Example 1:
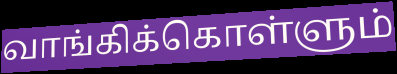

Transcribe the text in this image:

வாங்கிக்கொள்ளும்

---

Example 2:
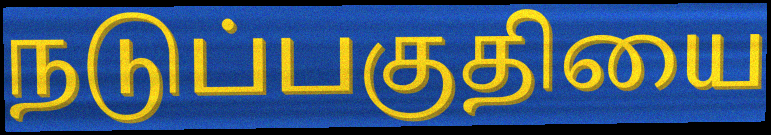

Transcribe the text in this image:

நடுப்பகுதியை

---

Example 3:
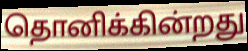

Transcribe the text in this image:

தொனிக்கின்றது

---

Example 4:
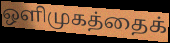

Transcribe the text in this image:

ஒளிமுகத்தைக்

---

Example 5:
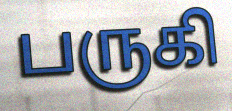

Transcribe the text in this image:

பருகி